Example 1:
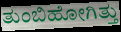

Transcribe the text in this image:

ತುಂಬಿಹೋಗಿತ್ತು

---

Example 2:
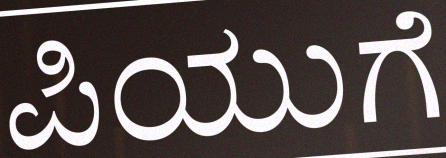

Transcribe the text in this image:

ಪಿಯುಗೆ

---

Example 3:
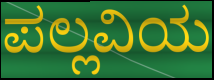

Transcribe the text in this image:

ಪಲ್ಲವಿಯ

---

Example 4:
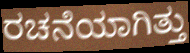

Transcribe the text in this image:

ರಚನೆಯಾಗಿತ್ತು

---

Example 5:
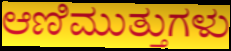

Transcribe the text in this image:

ಆಣಿಮುತ್ತುಗಳು